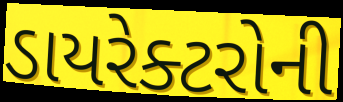
ડાયરેક્ટરોની